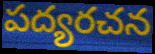
పద్యరచన